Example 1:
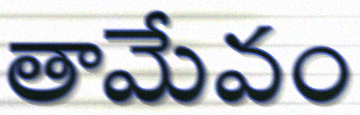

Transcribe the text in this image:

తామేవం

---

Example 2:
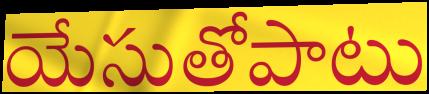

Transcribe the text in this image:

యేసుతోపాటు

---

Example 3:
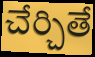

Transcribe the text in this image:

చేర్చితే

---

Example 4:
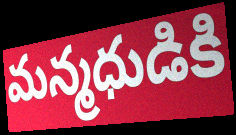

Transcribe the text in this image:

మన్మధుడికి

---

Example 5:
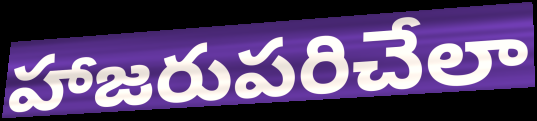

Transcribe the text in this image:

హాజరుపరిచేలా